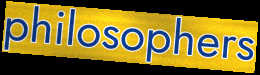
philosophers